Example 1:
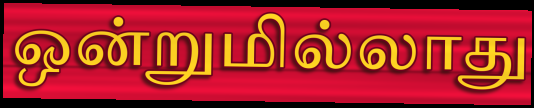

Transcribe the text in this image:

ஒன்றுமில்லாது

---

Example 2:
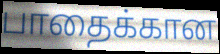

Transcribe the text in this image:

பாதைக்கான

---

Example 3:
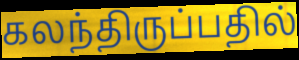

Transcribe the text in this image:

கலந்திருப்பதில்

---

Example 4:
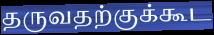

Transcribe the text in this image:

தருவதற்குக்கூட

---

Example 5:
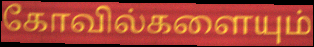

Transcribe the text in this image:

கோவில்களையும்